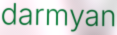
darmyan